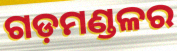
ଗଡ଼ମଣ୍ଡଳର